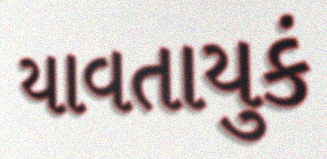
યાવતાયુકં